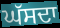
ਘੱਸਦਾ